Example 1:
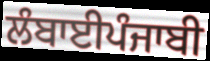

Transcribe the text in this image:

ਲੰਬਾਈਪੰਜਾਬੀ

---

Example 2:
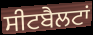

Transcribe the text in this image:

ਸੀਟਬੈਲਟਾਂ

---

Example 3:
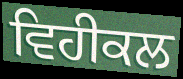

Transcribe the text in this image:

ਵਿਹੀਕਲ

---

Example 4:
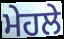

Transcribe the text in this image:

ਮੇਹਲੇ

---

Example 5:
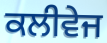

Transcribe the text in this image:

ਕਲੀਵੇਜ